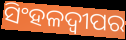
ସିଂହଳଦ୍ୱୀପର